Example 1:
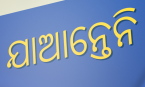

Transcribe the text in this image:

ଯାଆନ୍ତେନି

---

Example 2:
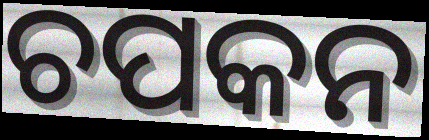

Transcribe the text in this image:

ଚପକନ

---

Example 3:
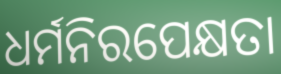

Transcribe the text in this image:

ଧର୍ମନିରପେକ୍ଷତା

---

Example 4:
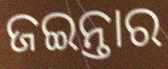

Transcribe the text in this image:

ଜଇନ୍ତାର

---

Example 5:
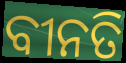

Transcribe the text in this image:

ବୀନତି